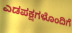
ಎಡಪಕ್ಷಗಳೊಂದಿಗೆ